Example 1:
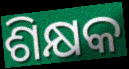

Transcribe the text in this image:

ଶିକ୍ଷକ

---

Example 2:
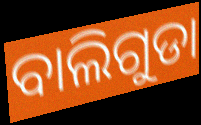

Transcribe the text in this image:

ବାଲିଗୁଡା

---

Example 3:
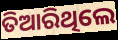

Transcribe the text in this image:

ତିଆରିଥିଲେ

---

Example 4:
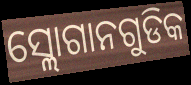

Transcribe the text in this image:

ସ୍ଲୋଗାନଗୁଡିକ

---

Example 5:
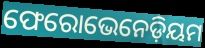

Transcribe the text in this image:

ଫେରୋଭେନେଡ଼ିୟମ